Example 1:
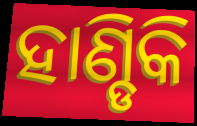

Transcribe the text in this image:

ହାଣ୍ଡିକି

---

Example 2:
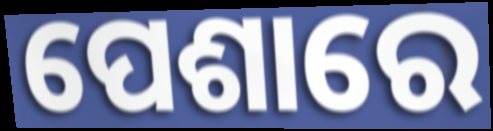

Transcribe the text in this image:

ପେଶାରେ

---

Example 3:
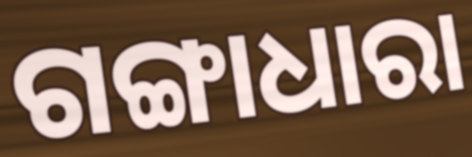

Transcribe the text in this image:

ଗଙ୍ଗାଧାରା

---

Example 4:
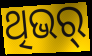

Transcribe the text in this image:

ଥିଭର୍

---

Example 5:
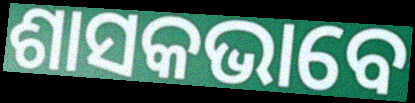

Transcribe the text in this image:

ଶାସକଭାବେ